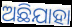
ଅଛିଯାହା